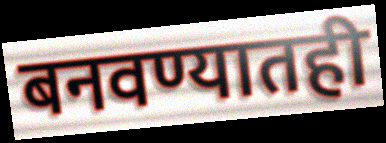
बनवण्यातही